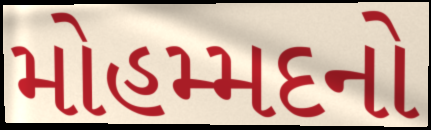
મોહમ્મદનો